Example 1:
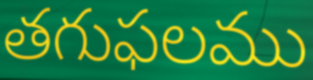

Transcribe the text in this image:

తగుఫలము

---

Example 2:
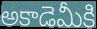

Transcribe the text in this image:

అకాడెమీకి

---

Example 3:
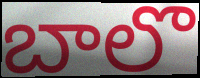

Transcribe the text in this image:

బాలొ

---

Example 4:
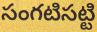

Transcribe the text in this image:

సంగటిసట్టి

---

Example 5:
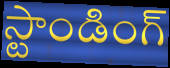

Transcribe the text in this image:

స్టాండింగ్